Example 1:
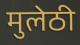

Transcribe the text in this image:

मुलेठी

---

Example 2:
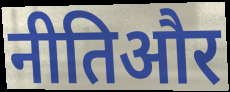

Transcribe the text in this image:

नीतिऔर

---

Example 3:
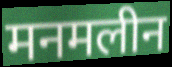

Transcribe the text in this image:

मनमलीन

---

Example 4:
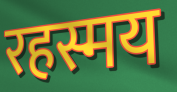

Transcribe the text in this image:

रहस्मय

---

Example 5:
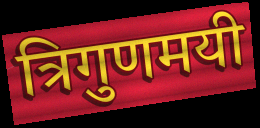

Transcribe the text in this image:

त्रिगुणमयी